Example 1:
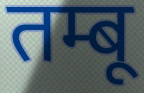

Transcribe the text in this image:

तम्‍बू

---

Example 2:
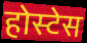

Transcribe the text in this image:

होस्टेस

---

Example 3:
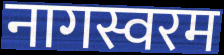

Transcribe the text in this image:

नागस्वरम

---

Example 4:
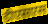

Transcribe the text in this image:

डीएसएस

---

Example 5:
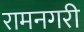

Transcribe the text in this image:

रामनगरी